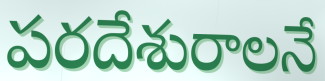
పరదేశురాలనే